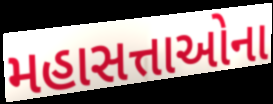
મહાસત્તાઓના